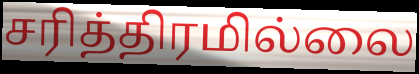
சரித்திரமில்லை